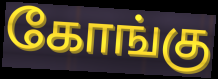
கோங்கு